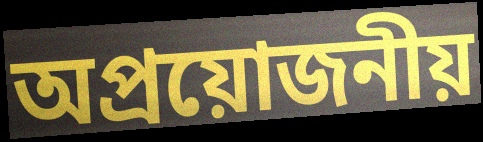
অপ্ৰয়োজনীয়